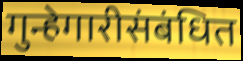
गुन्हेगारीसंबंधित